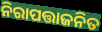
ନିରାପତ୍ତାଜନିତ